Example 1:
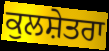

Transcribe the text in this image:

ਕੁਲਸ਼ੇਤਰਾ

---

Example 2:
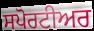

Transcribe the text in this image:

ਸਪੋਰਟੀਅਰ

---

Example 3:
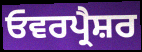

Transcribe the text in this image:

ਓਵਰਪ੍ਰੈਸ਼ਰ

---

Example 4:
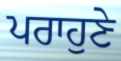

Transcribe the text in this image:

ਪਰਾਹੁਣੇ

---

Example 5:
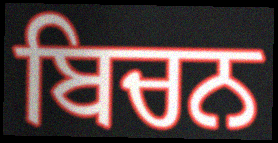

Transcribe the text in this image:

ਬਿਚਨ